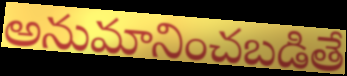
అనుమానించబడితే